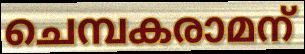
ചെമ്പകരാമന്